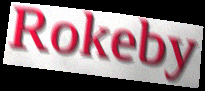
Rokeby